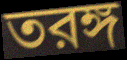
তরঙ্গ